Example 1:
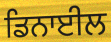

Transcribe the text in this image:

ਡਿਨਾਈਲ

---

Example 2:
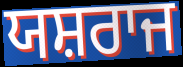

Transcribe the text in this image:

ਯਸ਼ਰਾਜ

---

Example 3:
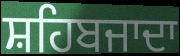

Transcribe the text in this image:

ਸ਼ਹਿਬਜਾਦਾ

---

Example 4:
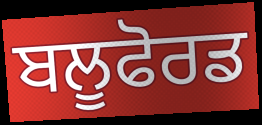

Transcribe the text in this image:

ਬਲੂਫੋਰਡ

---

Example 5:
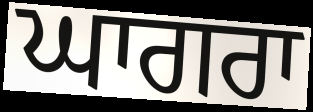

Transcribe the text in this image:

ਘਾਗਰਾ